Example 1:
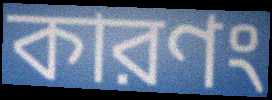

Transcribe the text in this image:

কারণং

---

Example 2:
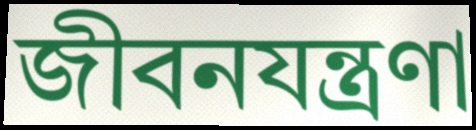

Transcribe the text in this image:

জীবনযন্ত্রণা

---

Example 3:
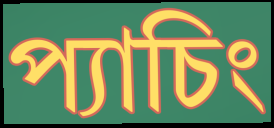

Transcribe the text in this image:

প্যাচিং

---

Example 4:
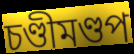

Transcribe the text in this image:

চণ্ডীমণ্ডপ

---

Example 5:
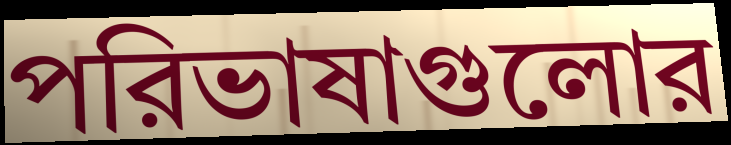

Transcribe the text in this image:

পরিভাষাগুলোর